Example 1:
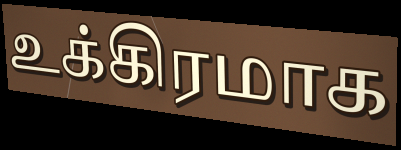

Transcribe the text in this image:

உக்கிரமாக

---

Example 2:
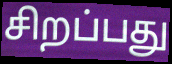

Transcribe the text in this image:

சிறப்பது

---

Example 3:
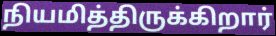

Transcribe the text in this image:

நியமித்திருக்கிறார்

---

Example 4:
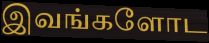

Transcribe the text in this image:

இவங்களோட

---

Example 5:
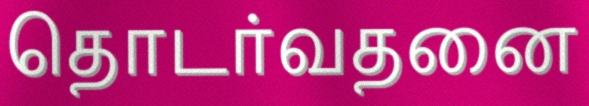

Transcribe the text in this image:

தொடர்வதனை